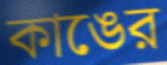
কাঙের